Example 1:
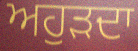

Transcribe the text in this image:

ਅਹੁੜਦਾ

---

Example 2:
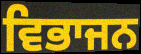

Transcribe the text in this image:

ਵਿਭਾਜਨ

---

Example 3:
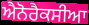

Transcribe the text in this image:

ਐਨੋਰੈਕਸੀਆ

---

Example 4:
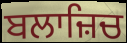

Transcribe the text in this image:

ਬਲਾਜ਼ਿਚ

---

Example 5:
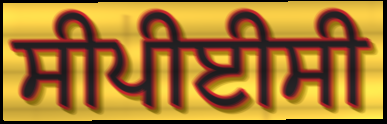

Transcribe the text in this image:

ਸੀਪੀਈਸੀ